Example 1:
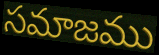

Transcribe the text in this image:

సమాజము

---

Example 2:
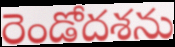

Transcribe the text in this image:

రెండోదశను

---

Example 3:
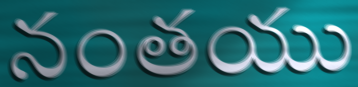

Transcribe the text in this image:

నంతయు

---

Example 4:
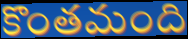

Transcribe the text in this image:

కొంతమంది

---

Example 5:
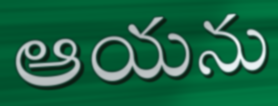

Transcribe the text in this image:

ఆయను